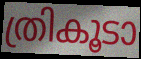
ത്രികൂടാ